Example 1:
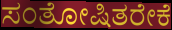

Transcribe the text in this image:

ಸಂತೋಷಿತರೇಕೆ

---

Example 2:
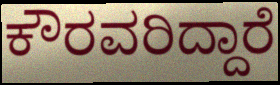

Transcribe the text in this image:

ಕೌರವರಿದ್ದಾರೆ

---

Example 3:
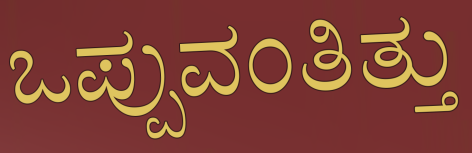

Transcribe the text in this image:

ಒಪ್ಪುವಂತಿತ್ತು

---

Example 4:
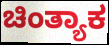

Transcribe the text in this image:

ಚಿಂತ್ಯಾಕ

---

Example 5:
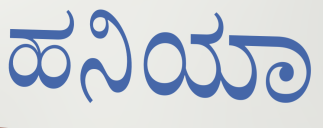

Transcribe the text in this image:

ಹನಿಯಾ